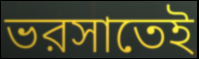
ভরসাতেই